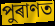
পুৰাণত